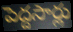
పెద్దసార్లు